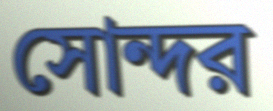
সোন্দর